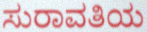
ಸುರಾವತಿಯ